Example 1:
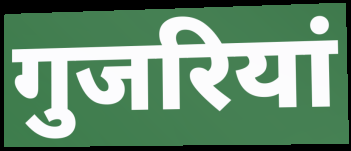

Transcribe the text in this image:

गुजरियां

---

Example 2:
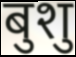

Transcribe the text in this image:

बुशु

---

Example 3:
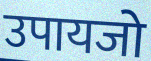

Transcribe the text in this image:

उपायजो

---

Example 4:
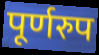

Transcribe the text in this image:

पूर्णरुप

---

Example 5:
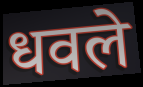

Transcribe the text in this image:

धवले